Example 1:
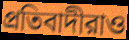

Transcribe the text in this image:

প্রতিবাদীরাও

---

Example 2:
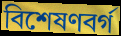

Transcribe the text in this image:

বিশেষণবর্গ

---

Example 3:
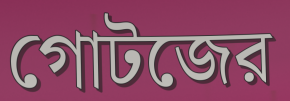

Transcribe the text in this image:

গোটজের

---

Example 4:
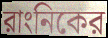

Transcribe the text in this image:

রাংনিকের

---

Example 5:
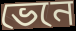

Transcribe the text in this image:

ভেনে